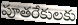
పూతరేకులకు